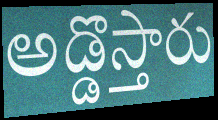
అడ్డొస్తారు